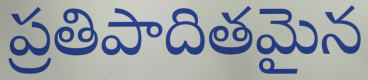
ప్రతిపాదితమైన